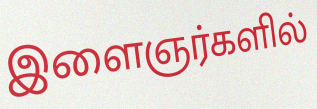
இளைஞர்களில்